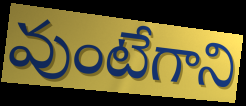
వుంటేగాని